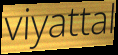
viyattal